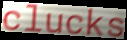
clucks